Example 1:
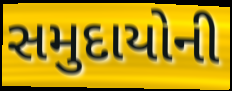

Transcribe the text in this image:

સમુદાયોની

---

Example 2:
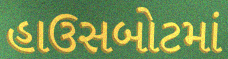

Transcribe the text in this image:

હાઉસબોટમાં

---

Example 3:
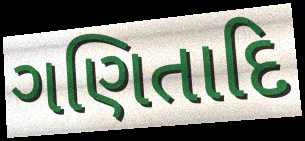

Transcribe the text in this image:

ગણિતાદિ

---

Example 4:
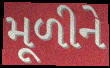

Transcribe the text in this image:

મૂળીને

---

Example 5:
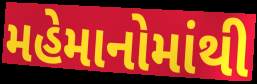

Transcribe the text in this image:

મહેમાનોમાંથી